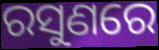
ରସୁଣରେ